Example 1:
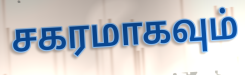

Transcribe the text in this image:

சகரமாகவும்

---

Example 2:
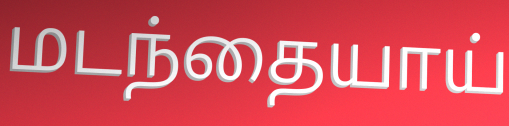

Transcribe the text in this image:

மடந்தையாய்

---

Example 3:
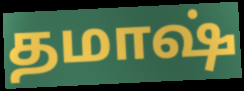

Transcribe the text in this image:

தமாஷ்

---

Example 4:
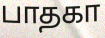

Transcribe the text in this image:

பாதகா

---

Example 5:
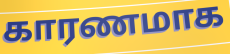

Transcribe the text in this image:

காரணமாக